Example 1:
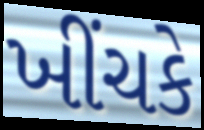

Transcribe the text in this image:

ખીંચકે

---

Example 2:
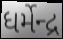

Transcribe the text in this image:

ધર્મેન્દ્ર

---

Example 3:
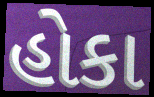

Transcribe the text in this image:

હોકા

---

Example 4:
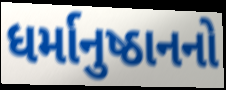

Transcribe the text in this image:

ધર્માનુષ્ઠાનનો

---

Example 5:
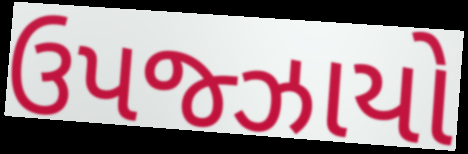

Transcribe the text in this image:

ઉપજ્ઝાયો